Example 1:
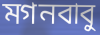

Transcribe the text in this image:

মগনবাবু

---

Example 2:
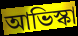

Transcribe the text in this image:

আভিস্কা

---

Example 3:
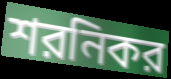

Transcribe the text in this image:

শরনিকর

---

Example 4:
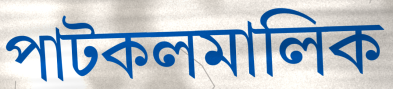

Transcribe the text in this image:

পাটকলমালিক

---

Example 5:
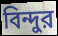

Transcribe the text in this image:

বিন্দুর